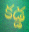
కడ్డ